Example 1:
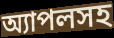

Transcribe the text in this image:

অ্যাপলসহ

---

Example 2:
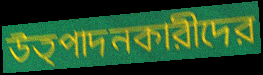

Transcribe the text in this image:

উত্পাদনকারীদের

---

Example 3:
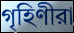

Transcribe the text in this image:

গৃহিণীরা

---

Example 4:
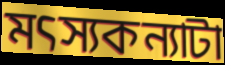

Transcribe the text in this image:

মৎস্যকন্যাটা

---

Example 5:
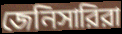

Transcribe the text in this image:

জেনিসারিরা